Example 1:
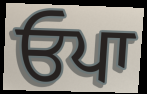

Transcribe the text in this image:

ਓਪਾ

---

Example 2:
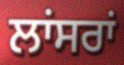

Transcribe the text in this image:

ਲਾਂਸਰਾਂ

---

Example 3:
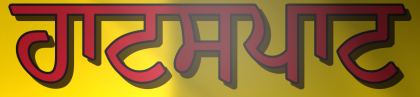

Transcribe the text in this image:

ਹਾਟਸਪਾਟ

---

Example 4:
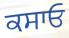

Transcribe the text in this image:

ਕਸਾਓ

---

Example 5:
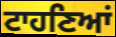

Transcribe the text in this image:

ਟਾਹਣਿਆਂ